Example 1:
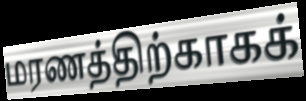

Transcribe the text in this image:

மரணத்திற்காகக்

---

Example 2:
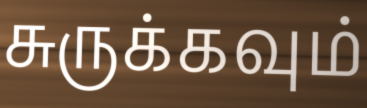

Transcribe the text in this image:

சுருக்கவும்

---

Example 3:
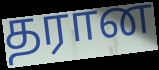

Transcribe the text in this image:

தரான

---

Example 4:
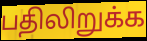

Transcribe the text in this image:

பதிலிறுக்க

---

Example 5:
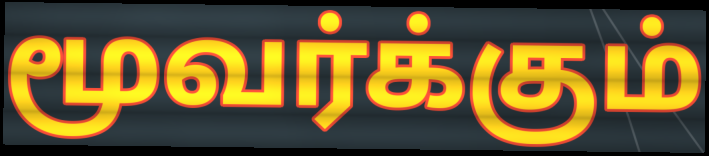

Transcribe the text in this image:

மூவர்க்கும்